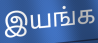
இயங்க